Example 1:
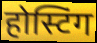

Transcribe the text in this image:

होस्टिंग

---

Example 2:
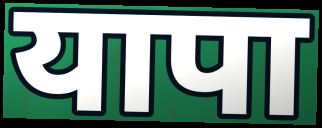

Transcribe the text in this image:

यापा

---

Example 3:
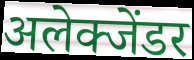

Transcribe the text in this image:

अलेक्जेंडर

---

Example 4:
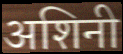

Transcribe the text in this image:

अशिनी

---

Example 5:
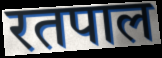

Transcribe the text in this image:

रतपाल